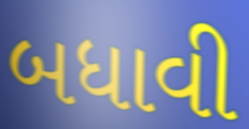
બધાવી